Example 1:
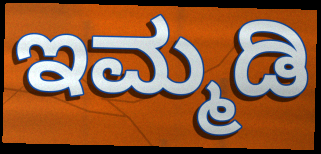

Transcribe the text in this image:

ಇಮ್ಮಡಿ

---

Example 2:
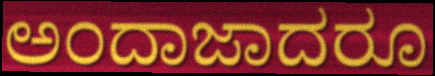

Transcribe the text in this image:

ಅಂದಾಜಾದರೂ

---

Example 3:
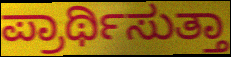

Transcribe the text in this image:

ಪ್ರಾರ್ಥಿಸುತ್ತಾ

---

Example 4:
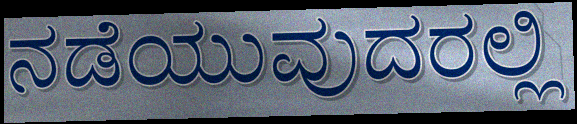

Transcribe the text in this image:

ನಡೆಯುವುದರಲ್ಲಿ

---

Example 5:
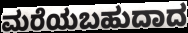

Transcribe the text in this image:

ಮರೆಯಬಹುದಾದ